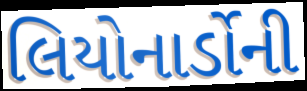
લિયોનાર્ડોની